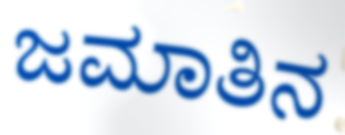
ಜಮಾತಿನ